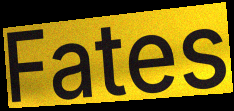
Fates